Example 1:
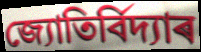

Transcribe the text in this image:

জ্যোতিৰ্বিদ্যাৰ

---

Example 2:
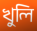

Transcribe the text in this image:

খুলি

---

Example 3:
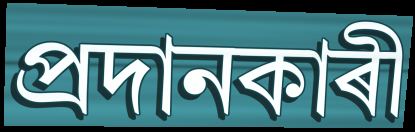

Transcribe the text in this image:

প্ৰদানকাৰী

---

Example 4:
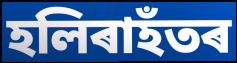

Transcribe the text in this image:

হলিৰাহঁতৰ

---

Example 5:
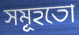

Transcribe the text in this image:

সমূহতো